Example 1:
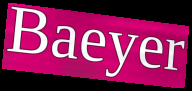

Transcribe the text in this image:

Baeyer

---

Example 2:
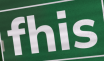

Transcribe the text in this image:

fhis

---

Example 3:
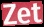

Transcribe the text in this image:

Zet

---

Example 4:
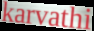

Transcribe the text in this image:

karvathi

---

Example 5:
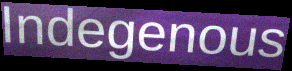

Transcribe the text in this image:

Indegenous